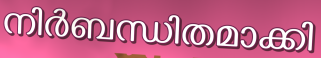
നിർബന്ധിതമാക്കി